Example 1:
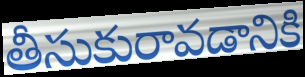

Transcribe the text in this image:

తీసుకురావడానికి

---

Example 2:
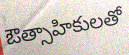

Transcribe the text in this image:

ఔత్సాహికులతో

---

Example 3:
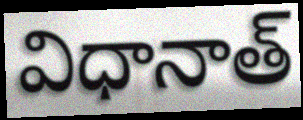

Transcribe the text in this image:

విధానాత్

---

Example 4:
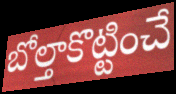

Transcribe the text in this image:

బోల్తాకొట్టించే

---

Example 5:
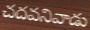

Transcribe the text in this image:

చదవనివాడు